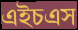
এইচএস